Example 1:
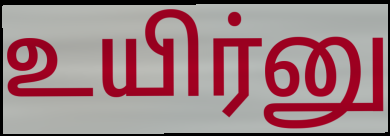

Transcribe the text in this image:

உயிர்னு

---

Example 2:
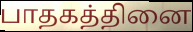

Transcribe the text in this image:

பாதகத்தினை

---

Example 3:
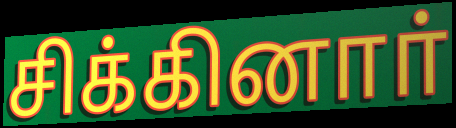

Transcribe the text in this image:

சிக்கினார்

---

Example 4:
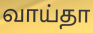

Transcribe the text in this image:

வாய்தா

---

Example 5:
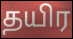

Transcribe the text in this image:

தயிர